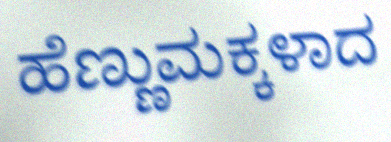
ಹೆಣ್ಣುಮಕ್ಕಳಾದ